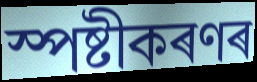
স্পষ্টীকৰণৰ